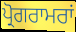
ਪ੍ਰੋਗਰਾਮਰਾਂ